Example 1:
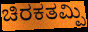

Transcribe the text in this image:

ಚಿರಕತಮ್ಪಿ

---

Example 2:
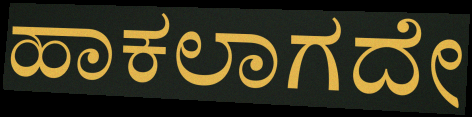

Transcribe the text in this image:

ಹಾಕಲಾಗದೇ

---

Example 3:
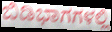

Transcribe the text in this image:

ಬಿಡಿಭಾಗಗಳಲ್ಲಿ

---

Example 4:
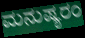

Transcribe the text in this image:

ಮನುಷ್ಯರಂ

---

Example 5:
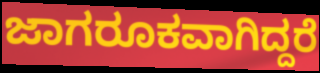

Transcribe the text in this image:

ಜಾಗರೂಕವಾಗಿದ್ದರೆ